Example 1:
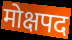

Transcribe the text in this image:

मोक्षपद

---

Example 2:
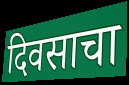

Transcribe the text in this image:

दिवसाचा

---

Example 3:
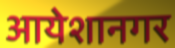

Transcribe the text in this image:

आयेशानगर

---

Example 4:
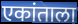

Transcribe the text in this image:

एकांताला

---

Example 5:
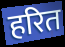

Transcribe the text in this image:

हरित